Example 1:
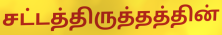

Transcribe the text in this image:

சட்டத்திருத்தத்தின்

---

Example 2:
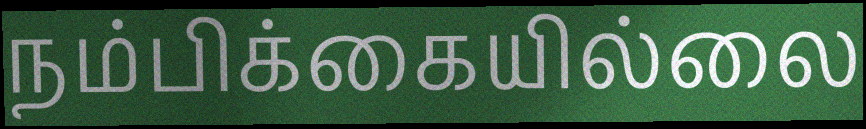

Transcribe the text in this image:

நம்பிக்கையில்லை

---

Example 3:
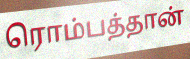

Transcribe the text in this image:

ரொம்பத்தான்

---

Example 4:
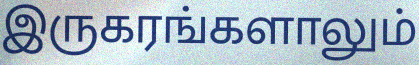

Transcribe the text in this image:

இருகரங்களாலும்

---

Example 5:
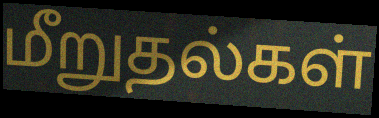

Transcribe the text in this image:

மீறுதல்கள்